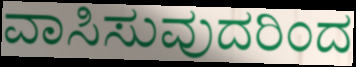
ವಾಸಿಸುವುದರಿಂದ